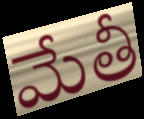
మేతీ